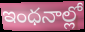
ఇంధనాల్లో